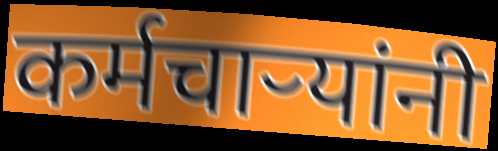
कर्मचाऱ्यांनी